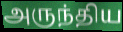
அருந்திய